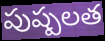
పుష్పలత